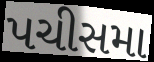
પચીસમા